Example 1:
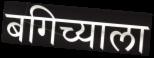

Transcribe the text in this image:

बगिच्याला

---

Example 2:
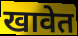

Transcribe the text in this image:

खावेत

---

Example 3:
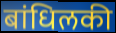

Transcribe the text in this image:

बांधिलकी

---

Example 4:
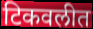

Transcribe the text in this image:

टिकवलीत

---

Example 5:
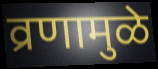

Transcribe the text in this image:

व्रणामुळे